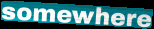
somewhere